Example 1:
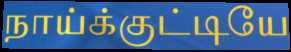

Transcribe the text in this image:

நாய்க்குட்டியே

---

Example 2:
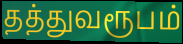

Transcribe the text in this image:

தத்துவரூபம்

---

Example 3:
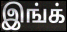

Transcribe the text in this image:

இங்க்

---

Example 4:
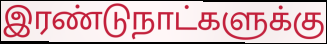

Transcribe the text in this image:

இரண்டுநாட்களுக்கு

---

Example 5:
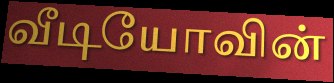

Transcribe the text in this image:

வீடியோவின்